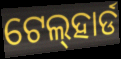
ଟେଲ୍‍ହାର୍ଡ